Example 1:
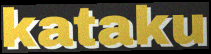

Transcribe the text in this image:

kataku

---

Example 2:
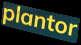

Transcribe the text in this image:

plantor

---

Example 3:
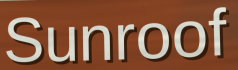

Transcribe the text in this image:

Sunroof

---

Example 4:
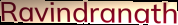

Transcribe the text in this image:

Ravindranath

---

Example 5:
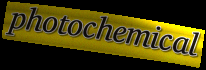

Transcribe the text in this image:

photochemical